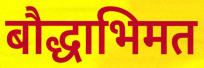
बौद्धाभिमत